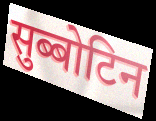
सुब्बोटिन